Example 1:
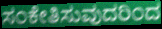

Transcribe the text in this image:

ಸಂಕೇತಿಸುವುದರಿಂದ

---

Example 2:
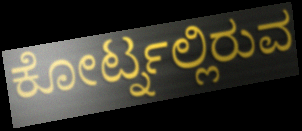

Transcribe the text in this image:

ಕೋರ್ಟ್ನಲ್ಲಿರುವ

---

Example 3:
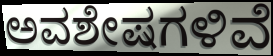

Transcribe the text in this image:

ಅವಶೇಷಗಳಿವೆ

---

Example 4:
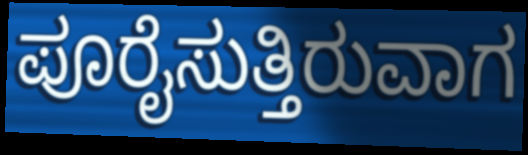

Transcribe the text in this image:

ಪೂರೈಸುತ್ತಿರುವಾಗ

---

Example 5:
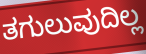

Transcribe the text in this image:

ತಗುಲುವುದಿಲ್ಲ